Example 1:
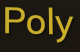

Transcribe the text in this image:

Poly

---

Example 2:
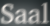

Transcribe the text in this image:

Saal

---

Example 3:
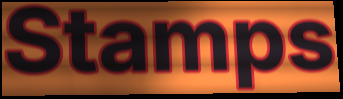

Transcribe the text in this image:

Stamps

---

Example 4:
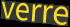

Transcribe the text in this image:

verre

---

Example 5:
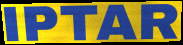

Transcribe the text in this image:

IPTAR